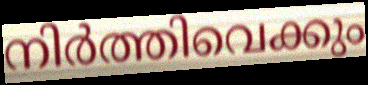
നിർത്തിവെക്കും